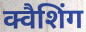
क्वैशिंग